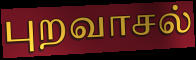
புறவாசல்